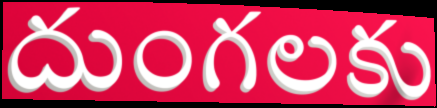
దుంగలకు